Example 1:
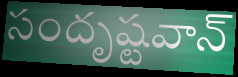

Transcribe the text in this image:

సందృష్టవాన్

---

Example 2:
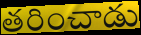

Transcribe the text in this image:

తరించాడు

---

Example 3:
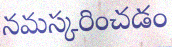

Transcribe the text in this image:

నమస్కరించడం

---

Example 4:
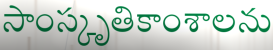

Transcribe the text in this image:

సాంస్కృతికాంశాలను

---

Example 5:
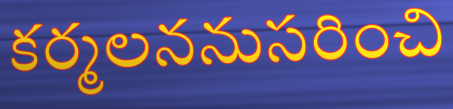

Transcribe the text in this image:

కర్మలననుసరించి